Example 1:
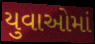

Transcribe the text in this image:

યુવાઓમાં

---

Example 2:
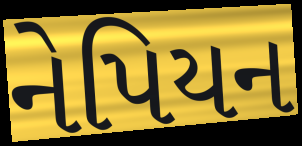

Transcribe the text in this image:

નેપિયન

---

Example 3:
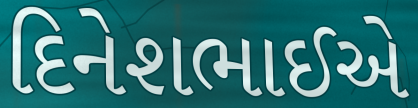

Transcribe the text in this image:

દિનેશભાઈએ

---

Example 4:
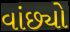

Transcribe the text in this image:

વાંછ્યો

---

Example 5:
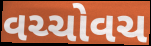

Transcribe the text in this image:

વચ્ચોવચ